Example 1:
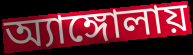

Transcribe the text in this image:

অ্যাঙ্গোলায়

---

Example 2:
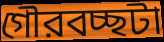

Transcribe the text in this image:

গৌরবচ্ছটা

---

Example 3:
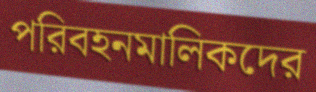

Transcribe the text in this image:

পরিবহনমালিকদের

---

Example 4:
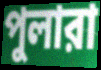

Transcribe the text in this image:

পুলারা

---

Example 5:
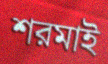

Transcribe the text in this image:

শরমাই